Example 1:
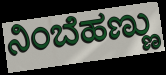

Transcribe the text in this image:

ನಿಂಬೆಹಣ್ಣು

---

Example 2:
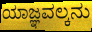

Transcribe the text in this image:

ಯಾಜ್ಞವಲ್ಕನು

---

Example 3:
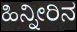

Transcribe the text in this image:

ಹಿನ್ನೀರಿನ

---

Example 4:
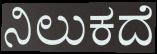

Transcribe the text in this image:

ನಿಲುಕದೆ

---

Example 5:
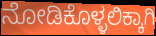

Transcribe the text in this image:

ನೋಡಿಕೊಳ್ಳಲಿಕ್ಕಾಗಿ